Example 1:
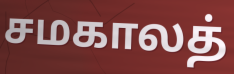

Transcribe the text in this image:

சமகாலத்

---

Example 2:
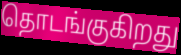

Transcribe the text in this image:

தொடங்குகிறது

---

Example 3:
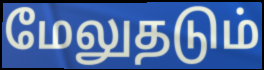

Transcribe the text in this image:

மேலுதடும்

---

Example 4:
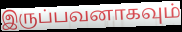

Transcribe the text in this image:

இருப்பவனாகவும்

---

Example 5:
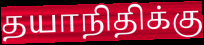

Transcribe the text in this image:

தயாநிதிக்கு